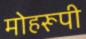
मोहरूपी